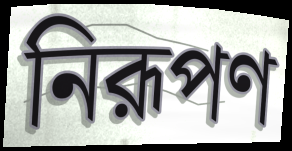
নিরূপণ